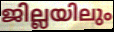
ജില്ലയിലും